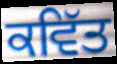
ਕਵਿੱਤ